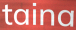
taina